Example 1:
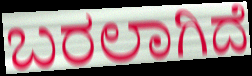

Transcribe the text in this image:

ಬರಲಾಗಿದೆ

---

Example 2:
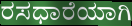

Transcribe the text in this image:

ರಸಧಾರೆಯಾಗಿ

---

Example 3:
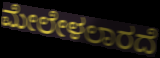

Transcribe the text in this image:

ಮೇಲೇಳಲಾರದೆ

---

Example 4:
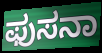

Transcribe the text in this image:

ಫುಸನಾ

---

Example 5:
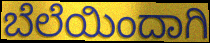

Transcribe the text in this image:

ಬೆಲೆಯಿಂದಾಗಿ